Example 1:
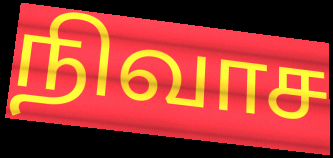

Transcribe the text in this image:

நிவாச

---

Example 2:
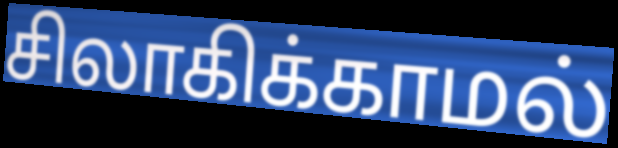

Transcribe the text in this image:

சிலாகிக்காமல்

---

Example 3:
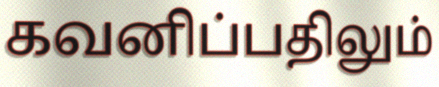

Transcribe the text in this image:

கவனிப்பதிலும்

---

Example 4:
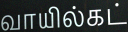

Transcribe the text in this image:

வாயில்கட்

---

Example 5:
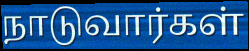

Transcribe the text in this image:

நாடுவார்கள்